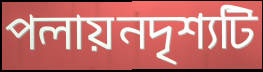
পলায়নদৃশ্যটি